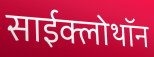
साईक्लोथॉन